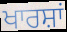
ਖਾਰਸ਼ਾਂ